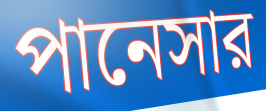
পানেসার